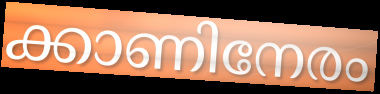
ക്കാണിനേരം